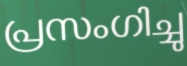
പ്രസംഗിച്ചു